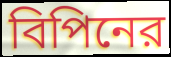
বিপিনের